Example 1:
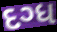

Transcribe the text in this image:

દગ્ધ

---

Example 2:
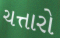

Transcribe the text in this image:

ચત્તારો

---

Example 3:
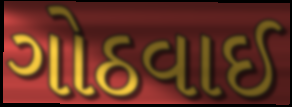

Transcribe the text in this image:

ગોઠવાઈ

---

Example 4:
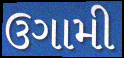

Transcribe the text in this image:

ઉગામી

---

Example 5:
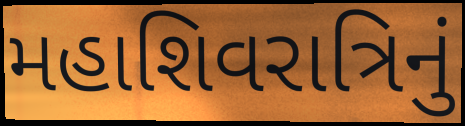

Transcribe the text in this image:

મહાશિવરાત્રિનું